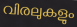
വിരലുകളും